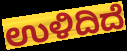
ಉಳಿದಿದೆ